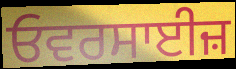
ਓਵਰਸਾਈਜ਼